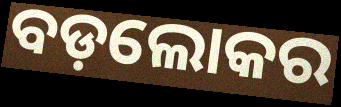
ବଡ଼ଲୋକର